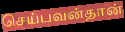
செய்பவன்தான்